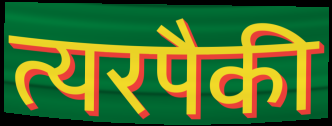
त्यरपैकी